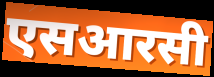
एसआरसी